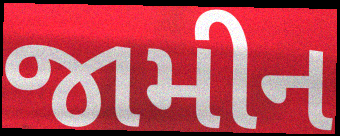
જામીન